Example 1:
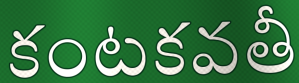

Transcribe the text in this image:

కంటకవతీ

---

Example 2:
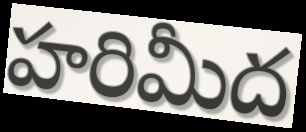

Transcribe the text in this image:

హరిమీద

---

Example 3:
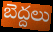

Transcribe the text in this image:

బెద్దలు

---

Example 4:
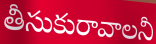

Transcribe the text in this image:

తీసుకురావాలనీ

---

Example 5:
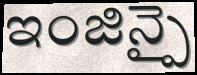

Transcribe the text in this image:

ఇంజిన్పై